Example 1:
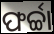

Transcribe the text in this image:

ଫର୍ଚ୍ଚା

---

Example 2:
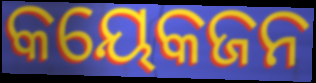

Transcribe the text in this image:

କୟେକଜନ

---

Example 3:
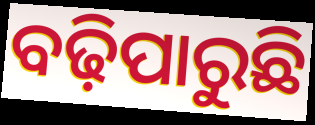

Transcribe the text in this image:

ବଢ଼ିପାରୁଛି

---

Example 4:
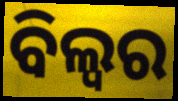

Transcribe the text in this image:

ବିଲ୍ୱର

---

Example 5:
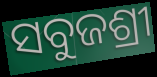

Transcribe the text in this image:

ସବୁଜଶ୍ରୀ